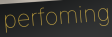
perfoming